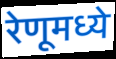
रेणूमध्ये